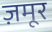
ज़मूर